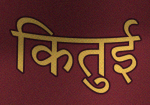
कितुई